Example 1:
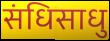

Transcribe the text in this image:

संधिसाधु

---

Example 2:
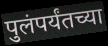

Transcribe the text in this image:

पुलंपर्यंतच्या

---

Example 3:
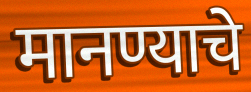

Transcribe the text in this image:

मानण्याचे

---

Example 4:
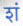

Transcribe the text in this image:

शं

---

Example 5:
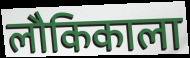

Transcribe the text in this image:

लौकिकाला